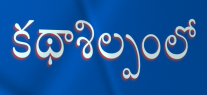
కథాశిల్పంలో